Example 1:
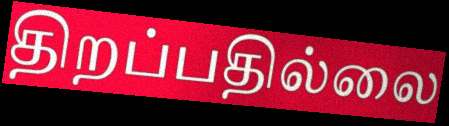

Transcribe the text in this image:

திறப்பதில்லை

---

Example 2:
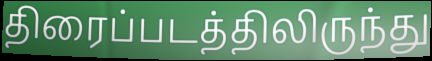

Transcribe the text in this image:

திரைப்படத்திலிருந்து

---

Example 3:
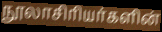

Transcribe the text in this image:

நூலாசிரியர்களின்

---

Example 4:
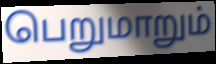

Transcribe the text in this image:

பெறுமாறும்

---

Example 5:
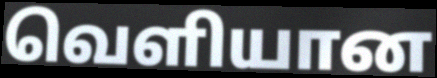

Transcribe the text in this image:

வெளியான